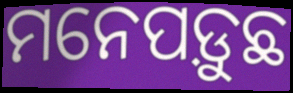
ମନେପଡ଼ୁଛ